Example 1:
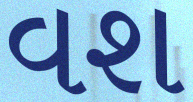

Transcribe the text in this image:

વશ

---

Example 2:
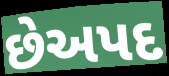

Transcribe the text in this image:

છેઅપદ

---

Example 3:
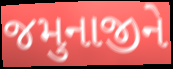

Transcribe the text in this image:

જમુનાજીને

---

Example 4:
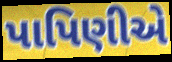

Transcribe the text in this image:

પાપિણીએ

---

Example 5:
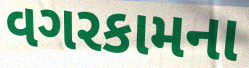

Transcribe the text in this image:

વગરકામના